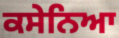
ਕਸੇਨਿਆ